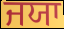
ਜਯਾ